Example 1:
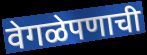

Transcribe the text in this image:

वेगळेपणाची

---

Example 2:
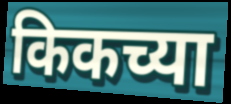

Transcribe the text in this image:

किकच्या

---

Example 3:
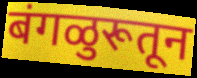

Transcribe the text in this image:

बंगळुरूतून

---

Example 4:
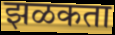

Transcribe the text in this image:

झळकता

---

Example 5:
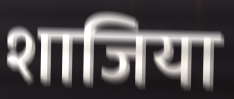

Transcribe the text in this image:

शाजिया